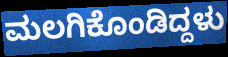
ಮಲಗಿಕೊಂಡಿದ್ದಳು